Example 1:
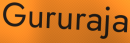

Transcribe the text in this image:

Gururaja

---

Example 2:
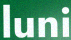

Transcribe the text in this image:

luni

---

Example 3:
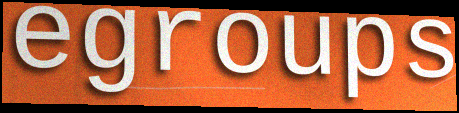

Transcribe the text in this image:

egroups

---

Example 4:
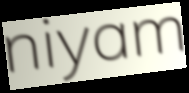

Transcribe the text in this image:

niyam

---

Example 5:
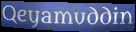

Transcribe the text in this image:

Qeyamuddin